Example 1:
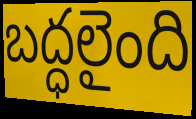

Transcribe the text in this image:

బద్ధలైంది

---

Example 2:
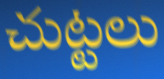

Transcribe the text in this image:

చుట్టలు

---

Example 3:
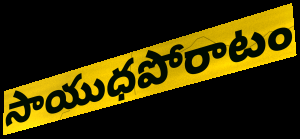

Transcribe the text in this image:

సాయుధపోరాటం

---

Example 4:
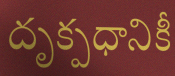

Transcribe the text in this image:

దృక్పధానికీ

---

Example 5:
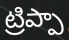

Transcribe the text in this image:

ట్రిప్పా